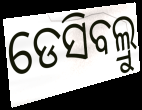
ଡେସିବଲ୍ରୁ